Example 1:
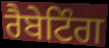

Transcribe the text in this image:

ਰੈਬੇਟਿੰਗ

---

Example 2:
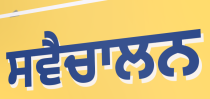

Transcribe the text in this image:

ਸਵੈਚਾਲਨ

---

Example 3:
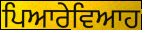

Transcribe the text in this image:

ਪਿਆਰੇਵਿਆਹ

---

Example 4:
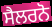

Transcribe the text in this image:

ਸੈਲਰਨੋ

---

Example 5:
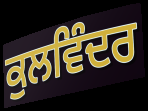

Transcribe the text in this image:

ਕੁਲਵਿੰਦਰ